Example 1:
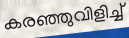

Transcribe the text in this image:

കരഞ്ഞുവിളിച്ച്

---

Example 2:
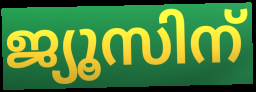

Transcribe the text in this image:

ജ്യൂസിന്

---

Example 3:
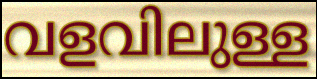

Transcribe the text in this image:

വളവിലുള്ള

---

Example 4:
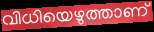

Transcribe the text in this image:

വിധിയെഴുത്താണ്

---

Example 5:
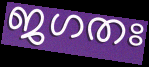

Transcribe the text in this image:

ജഗതഃ